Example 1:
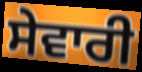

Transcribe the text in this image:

ਸੇਵਾਰੀ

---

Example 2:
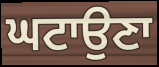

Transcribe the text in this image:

ਘਟਾਉਣਾ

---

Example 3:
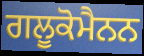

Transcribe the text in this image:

ਗਲੂਕੋਮੈਨਨ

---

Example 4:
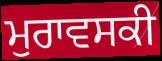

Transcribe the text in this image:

ਮੁਰਾਵਸਕੀ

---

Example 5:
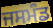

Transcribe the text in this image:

ਜਸਮੰਡ